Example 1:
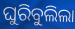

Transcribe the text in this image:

ଘୁରିବୁଲିଲା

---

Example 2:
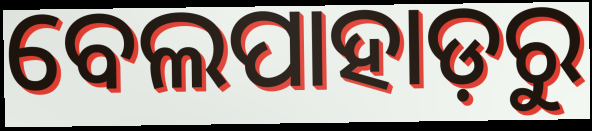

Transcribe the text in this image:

ବେଲପାହାଡ଼ରୁ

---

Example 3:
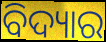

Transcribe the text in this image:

ବିଦ୍ୟାର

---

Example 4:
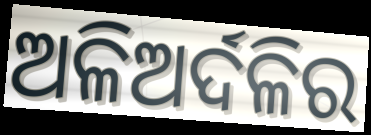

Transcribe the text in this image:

ଅଳିଅର୍ଦଳିର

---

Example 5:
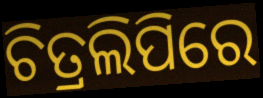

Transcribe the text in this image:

ଚିତ୍ରଲିପିରେ